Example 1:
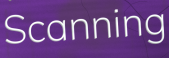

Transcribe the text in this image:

Scanning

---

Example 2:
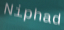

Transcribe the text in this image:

Niphad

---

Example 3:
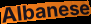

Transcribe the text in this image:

Albanese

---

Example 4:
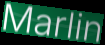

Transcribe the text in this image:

Marlin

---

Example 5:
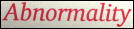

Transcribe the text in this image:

Abnormality